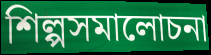
শিল্পসমালোচনা